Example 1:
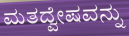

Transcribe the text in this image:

ಮತದ್ವೇಷವನ್ನು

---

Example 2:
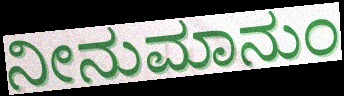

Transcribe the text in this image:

ನೀನುಮಾನುಂ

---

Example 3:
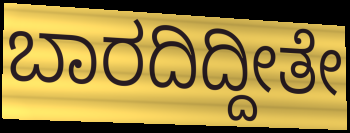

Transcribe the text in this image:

ಬಾರದಿದ್ದೀತೇ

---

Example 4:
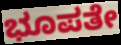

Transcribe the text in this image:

ಭೂಪತೇ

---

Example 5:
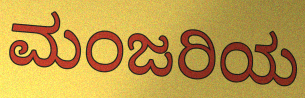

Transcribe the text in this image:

ಮಂಜರಿಯ